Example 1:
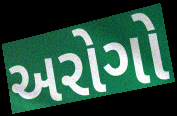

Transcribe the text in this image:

અરોગો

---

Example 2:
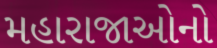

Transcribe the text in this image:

મહારાજાઓનો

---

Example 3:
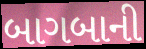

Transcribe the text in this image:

બાગબાની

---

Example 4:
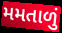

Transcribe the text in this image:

મમતાળું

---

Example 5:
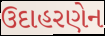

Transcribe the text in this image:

ઉદાહરણેન